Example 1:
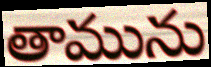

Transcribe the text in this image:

తామును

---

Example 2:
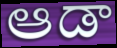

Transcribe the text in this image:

ఆడా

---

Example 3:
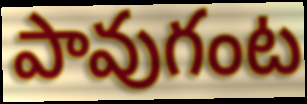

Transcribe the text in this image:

పావుగంట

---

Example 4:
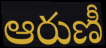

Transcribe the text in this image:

ఆరుణీ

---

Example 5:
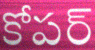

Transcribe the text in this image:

కోపర్